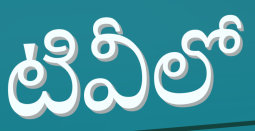
టివీలో